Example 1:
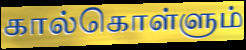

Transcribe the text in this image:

கால்கொள்ளும்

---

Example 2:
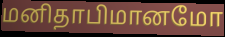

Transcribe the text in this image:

மனிதாபிமானமோ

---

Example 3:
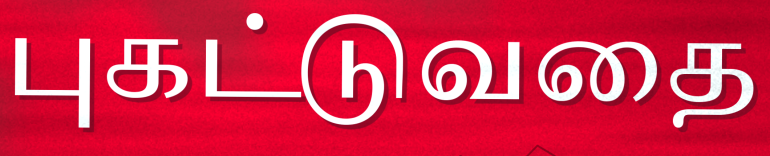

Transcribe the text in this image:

புகட்டுவதை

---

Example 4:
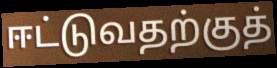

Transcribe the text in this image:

ஈட்டுவதற்குத்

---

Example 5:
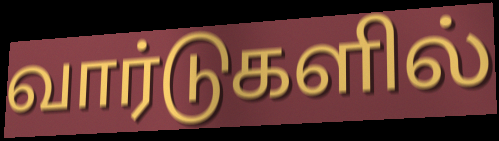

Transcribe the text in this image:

வார்டுகளில்